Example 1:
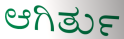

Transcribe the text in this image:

ಆಗಿರ್ತು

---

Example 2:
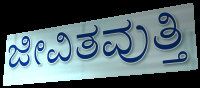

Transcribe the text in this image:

ಜೀವಿತವುತ್ತಿ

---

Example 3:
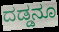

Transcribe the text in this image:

ದಡ್ಡನೂ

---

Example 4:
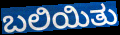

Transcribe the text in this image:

ಬಲಿಯಿತು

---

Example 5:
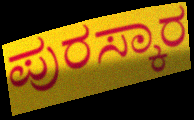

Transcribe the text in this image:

ಪುರಸ್ಕಾರ